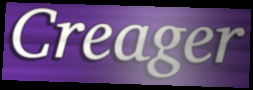
Creager